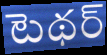
టెథర్